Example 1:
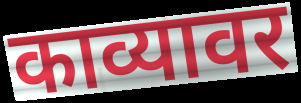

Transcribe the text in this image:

काव्यावर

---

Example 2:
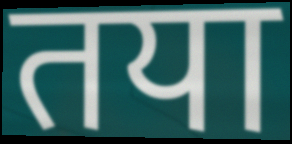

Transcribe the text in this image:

तया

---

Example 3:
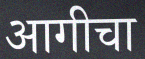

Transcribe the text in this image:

आगीचा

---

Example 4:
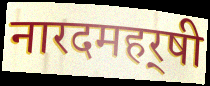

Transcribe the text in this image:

नारदमहर्षी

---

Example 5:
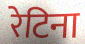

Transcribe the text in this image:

रेटिना